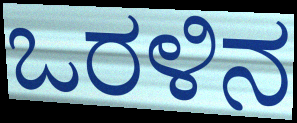
ಒರಳಿನ